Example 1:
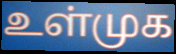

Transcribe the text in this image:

உள்முக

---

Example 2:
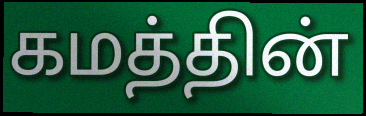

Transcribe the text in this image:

கமத்தின்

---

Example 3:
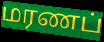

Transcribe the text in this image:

மரணப்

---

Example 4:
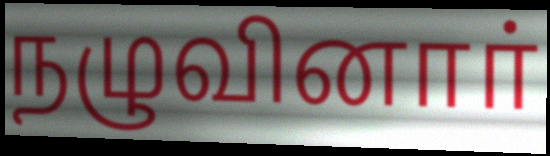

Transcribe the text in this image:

நழுவினார்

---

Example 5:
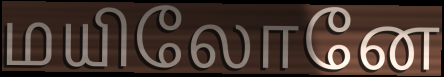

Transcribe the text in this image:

மயிலோனே